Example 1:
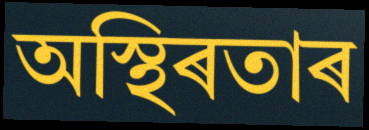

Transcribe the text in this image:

অস্থিৰতাৰ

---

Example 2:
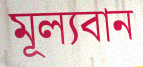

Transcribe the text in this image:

মূল্যবান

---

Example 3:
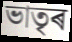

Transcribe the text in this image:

ভাতৃৰ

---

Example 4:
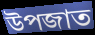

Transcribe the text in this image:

উপজাত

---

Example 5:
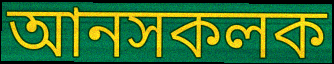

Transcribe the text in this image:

আনসকলক